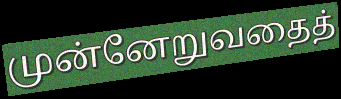
முன்னேறுவதைத்